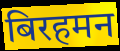
बिरहमन